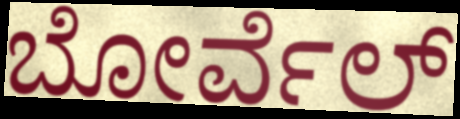
ಬೋರ್ವೆಲ್